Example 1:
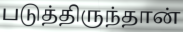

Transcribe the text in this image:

படுத்திருந்தான்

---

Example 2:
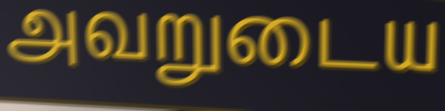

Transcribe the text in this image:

அவறுடைய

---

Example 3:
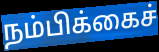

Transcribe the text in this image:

நம்பிக்கைச்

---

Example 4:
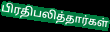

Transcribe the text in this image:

பிரதிபலித்தார்கள்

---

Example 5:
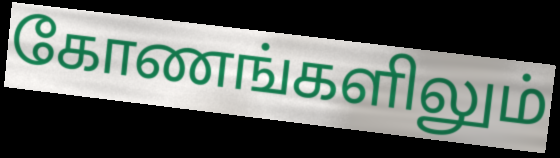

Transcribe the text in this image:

கோணங்களிலும்